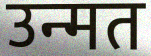
उन्मत